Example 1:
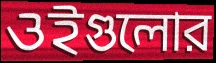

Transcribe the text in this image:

ওইগুলোর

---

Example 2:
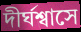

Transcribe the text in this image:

দীর্ঘশ্বাসে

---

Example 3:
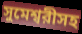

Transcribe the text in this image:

সুমেশ্বরীসহ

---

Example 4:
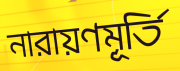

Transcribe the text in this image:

নারায়ণমূর্তি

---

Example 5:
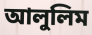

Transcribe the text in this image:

আলুলিম